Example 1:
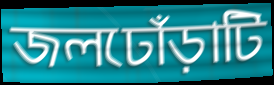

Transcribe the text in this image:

জলঢোঁড়াটি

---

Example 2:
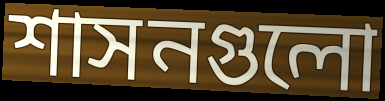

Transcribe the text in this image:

শাসনগুলো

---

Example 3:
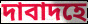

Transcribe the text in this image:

দাবাদহে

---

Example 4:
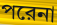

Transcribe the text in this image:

পরেনা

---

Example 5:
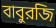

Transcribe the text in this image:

বাবুরজি